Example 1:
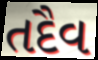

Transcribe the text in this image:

તદૈવ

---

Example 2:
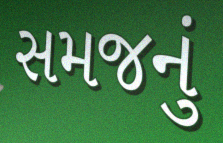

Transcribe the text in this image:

સમજનું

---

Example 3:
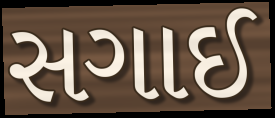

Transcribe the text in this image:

સગાઈ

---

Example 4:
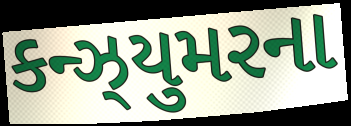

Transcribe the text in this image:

કન્ઝ્યુમરના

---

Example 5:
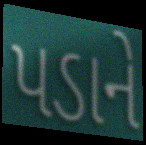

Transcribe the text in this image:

પડાને